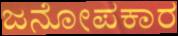
ಜನೋಪಕಾರ